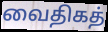
வைதிகத்